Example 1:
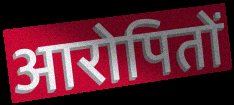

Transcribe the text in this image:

आरोपितों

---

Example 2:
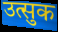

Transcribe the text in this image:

उत्‍सुक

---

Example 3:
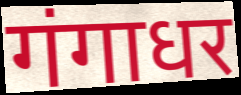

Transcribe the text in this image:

गंगाधर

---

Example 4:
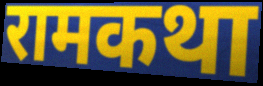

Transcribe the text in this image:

रामकथा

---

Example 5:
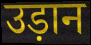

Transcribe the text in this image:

उड़ान